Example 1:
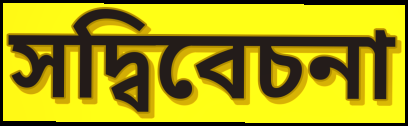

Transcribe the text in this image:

সদ্বিবেচনা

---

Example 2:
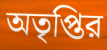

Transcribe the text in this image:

অতৃপ্তির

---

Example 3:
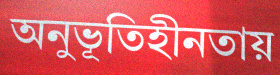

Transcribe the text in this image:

অনুভূতিহীনতায়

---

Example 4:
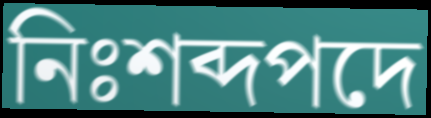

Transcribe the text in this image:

নিঃশব্দপদে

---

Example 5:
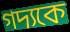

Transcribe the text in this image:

গদ্যকে